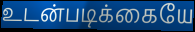
உடன்படிக்கையே